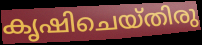
കൃഷിചെയ്തിരു